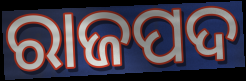
ରାଜପଦ